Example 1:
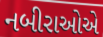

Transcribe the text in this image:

નબીરાઓએ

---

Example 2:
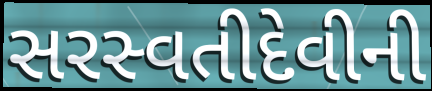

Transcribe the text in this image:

સરસ્વતીદેવીની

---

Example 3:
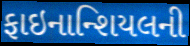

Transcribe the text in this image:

ફાઇનાન્શિયલની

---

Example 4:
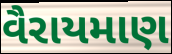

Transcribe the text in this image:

વૈરાયમાણ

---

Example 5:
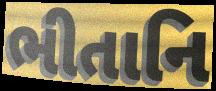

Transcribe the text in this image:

ભીતાનિ